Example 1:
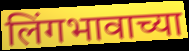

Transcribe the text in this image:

लिंगभावाच्या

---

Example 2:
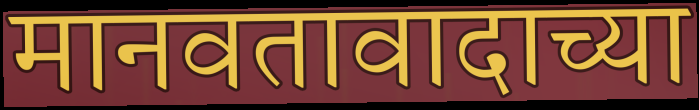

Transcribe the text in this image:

मानवतावादाच्या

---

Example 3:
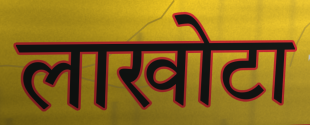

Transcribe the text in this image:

लाखोटा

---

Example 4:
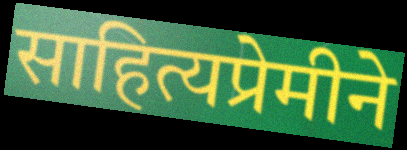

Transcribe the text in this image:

साहित्यप्रेमीने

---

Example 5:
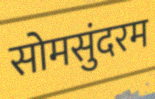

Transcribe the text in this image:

सोमसुंदरम